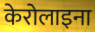
केरोलाइना